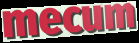
mecum